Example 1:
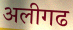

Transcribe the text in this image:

अलीगढ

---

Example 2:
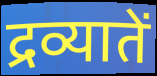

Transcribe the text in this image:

द्रव्यातें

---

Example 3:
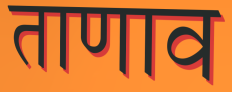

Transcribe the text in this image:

ताणाव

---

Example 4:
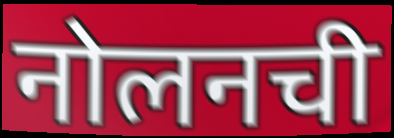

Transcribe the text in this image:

नोलनची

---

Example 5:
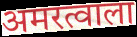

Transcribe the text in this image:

अमरत्वाला